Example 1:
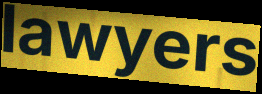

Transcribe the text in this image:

lawyers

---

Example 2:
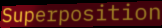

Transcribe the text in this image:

Superposition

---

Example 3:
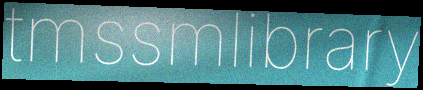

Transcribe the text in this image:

tmssmlibrary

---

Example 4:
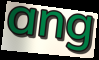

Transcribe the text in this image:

ang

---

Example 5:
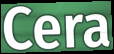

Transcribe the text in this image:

Cera